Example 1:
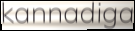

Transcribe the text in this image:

kannadiga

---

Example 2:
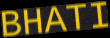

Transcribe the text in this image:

BHATI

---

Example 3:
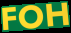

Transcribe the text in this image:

FOH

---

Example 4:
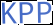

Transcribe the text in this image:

KPP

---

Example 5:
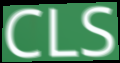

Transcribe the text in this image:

CLS